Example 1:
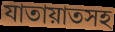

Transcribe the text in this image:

যাতায়াতসহ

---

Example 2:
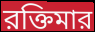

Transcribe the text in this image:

রক্তিমার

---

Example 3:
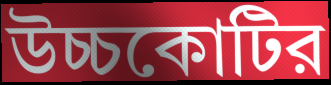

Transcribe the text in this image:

উচ্চকোটির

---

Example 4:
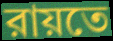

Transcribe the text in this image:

রায়তে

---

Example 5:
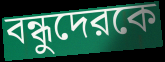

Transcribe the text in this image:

বন্ধুদেরকে